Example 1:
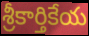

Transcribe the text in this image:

శ్రీకార్తికేయ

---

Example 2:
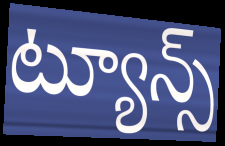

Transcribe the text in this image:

ట్యూన్స్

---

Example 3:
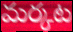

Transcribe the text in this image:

మర్కట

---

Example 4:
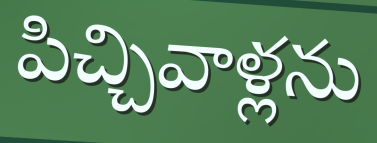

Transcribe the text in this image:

పిచ్చివాళ్లను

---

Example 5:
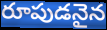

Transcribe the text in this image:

రూపుడనైన